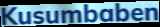
Kusumbaben